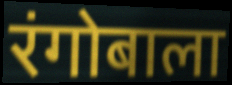
रंगोबाला